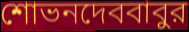
শোভনদেববাবুর